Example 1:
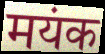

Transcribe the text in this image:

मयंक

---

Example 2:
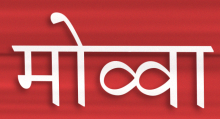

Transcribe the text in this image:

मोव्वा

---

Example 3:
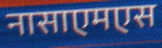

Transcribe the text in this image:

नासाएमएस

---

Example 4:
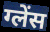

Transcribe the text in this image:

ग्लेंस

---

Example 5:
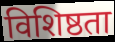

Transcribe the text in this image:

विशिष्ठता